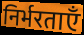
निर्भरताएँ